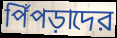
পিঁপড়াদের